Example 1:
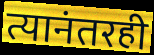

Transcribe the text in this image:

त्यानंतरही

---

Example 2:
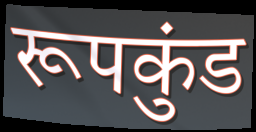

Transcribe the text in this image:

रूपकुंड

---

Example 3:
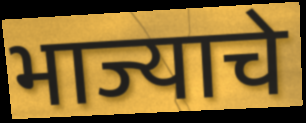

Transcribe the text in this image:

भाज्याचे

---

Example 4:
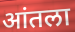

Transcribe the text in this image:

आंतला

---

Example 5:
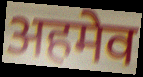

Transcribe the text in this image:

अहमेव